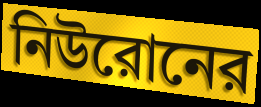
নিউরোনের